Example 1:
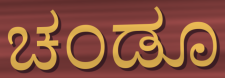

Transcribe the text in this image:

ಚಂಡೂ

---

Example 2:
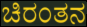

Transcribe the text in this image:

ಚಿರಂತನ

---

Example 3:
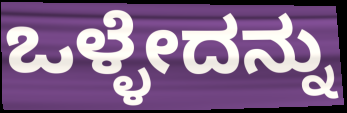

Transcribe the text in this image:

ಒಳ್ಳೇದನ್ನು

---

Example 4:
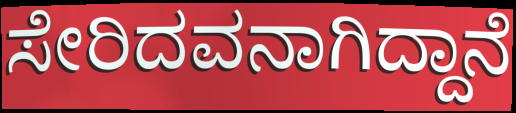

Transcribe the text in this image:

ಸೇರಿದವನಾಗಿದ್ದಾನೆ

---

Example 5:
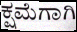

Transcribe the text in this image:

ಕ್ಷಮೆಗಾಗಿ